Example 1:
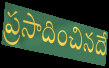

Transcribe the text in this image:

ప్రసాదించినదే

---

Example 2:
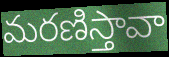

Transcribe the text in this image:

మరణిస్తావా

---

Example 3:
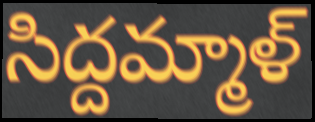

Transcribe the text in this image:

సిద్దమ్మాళ్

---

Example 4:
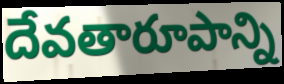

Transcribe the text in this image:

దేవతారూపాన్ని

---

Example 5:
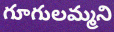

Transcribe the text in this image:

గూగులమ్మని